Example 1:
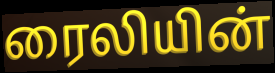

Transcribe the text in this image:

ரைலியின்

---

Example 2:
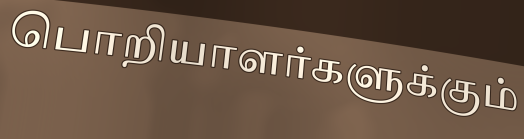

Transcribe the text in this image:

பொறியாளர்களுக்கும்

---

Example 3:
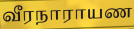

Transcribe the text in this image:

வீரநாராயண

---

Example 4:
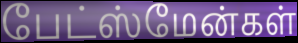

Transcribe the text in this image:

பேட்ஸ்மேன்கள்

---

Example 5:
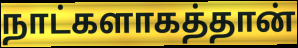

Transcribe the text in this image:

நாட்களாகத்தான்